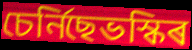
চেৰ্নিছেভস্কিৰ